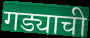
गड्याची